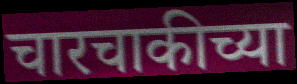
चारचाकीच्या